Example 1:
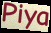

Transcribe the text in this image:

Piya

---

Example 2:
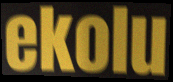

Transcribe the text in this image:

ekolu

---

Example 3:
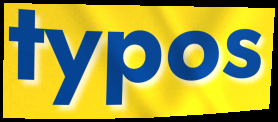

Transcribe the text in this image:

typos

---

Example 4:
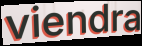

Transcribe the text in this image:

viendra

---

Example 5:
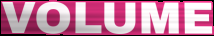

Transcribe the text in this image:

VOLUME